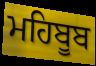
ਮਹਿਬੂਬ